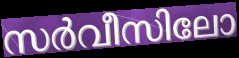
സർവീസിലോ